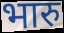
भारु